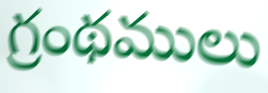
గ్రంథములు